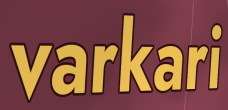
varkari